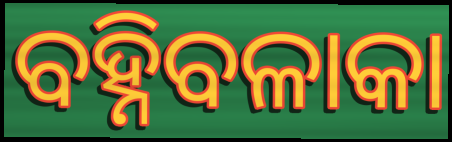
ବହ୍ନିବଳାକା